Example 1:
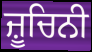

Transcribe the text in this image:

ਜ਼ੂਚਿਨੀ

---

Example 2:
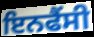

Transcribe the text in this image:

ਇਨਫੈਂਸੀ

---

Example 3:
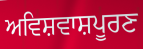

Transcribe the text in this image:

ਅਵਿਸ਼ਵਾਸ਼ਪੂਰਣ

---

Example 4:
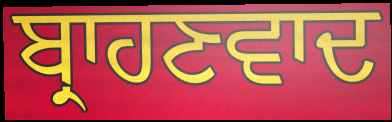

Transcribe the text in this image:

ਬ੍ਰਾਹਣਵਾਦ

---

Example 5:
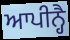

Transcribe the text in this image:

ਆਪੀਨ੍ਹ੍ਹੈ